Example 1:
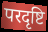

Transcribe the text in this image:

परदृष्टि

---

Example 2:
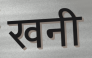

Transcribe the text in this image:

खनी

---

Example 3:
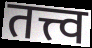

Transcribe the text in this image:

तत्त्व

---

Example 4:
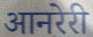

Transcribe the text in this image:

आनरेरी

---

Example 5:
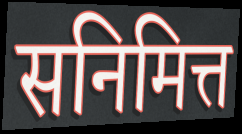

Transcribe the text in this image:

सनिमित्त